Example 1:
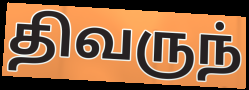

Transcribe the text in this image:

திவருந்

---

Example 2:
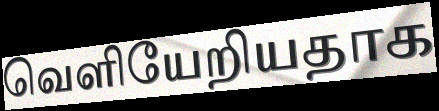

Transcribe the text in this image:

வெளியேறியதாக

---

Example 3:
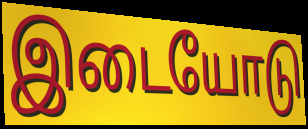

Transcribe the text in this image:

இடையோடு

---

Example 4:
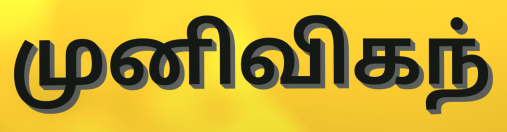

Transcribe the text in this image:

முனிவிகந்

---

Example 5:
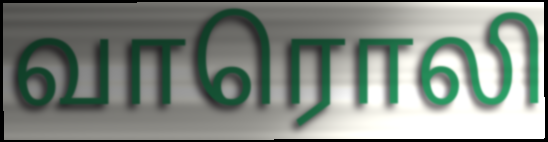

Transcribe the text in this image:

வாரொலி